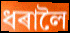
ধৰালৈ